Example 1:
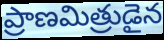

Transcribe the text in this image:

ప్రాణమిత్రుడైన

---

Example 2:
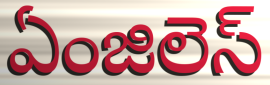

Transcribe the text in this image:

ఏంజిలెస్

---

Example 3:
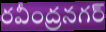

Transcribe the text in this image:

రవీంద్రనగర్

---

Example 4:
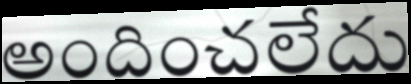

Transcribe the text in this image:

అందించలేదు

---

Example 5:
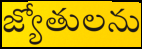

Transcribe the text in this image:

జ్యోతులను